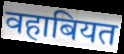
वहाबियत